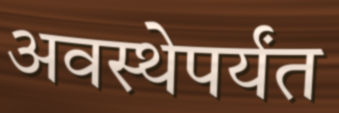
अवस्थेपर्यंत